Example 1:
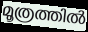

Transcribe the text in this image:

മൂത്രത്തിൽ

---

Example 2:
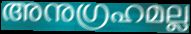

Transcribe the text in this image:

അനുഗ്രഹമല്ല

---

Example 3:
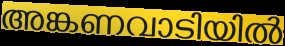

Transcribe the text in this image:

അങ്കണവാടിയിൽ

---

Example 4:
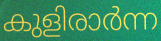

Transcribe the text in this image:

കുളിരാർന്ന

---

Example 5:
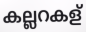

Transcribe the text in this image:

കല്ലറകള്